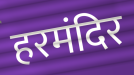
हरमंदिर